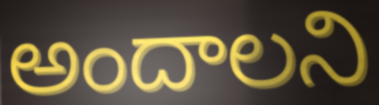
అందాలని